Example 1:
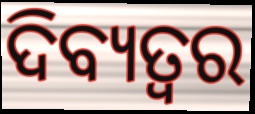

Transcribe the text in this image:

ଦିବ୍ୟତ୍ବର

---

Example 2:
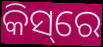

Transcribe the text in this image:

କିସ୍‌ରେ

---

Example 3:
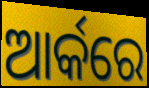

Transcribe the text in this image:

ଆର୍କରେ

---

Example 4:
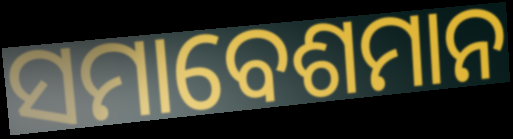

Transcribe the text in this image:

ସମାବେଶମାନ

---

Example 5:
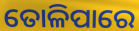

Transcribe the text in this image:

ତୋଳିପାରେ